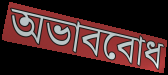
অভাববোধ